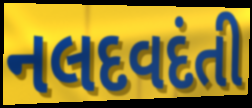
નલદવદંતી